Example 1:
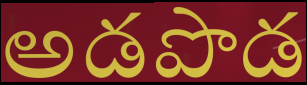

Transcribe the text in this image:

అడపొడ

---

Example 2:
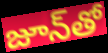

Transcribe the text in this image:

జూన్‌తో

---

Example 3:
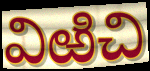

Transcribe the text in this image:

విఱిచి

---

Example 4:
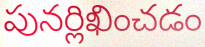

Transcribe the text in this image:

పునర్లిఖించడం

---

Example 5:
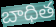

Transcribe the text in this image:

బాధిత